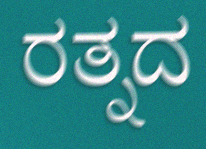
ರತ್ನದ